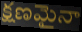
క్షణమైనా